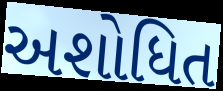
અશોધિત